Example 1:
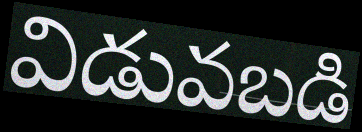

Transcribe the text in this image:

విడువబడి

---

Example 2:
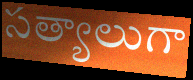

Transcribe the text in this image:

సత్యాలుగా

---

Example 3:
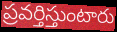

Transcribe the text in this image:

ప్రవర్తిస్తుంటారు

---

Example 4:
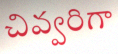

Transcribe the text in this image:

చివ్వరిగా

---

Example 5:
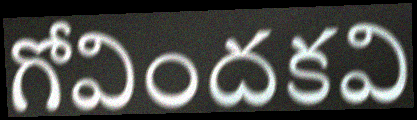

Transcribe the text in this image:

గోవిందకవి